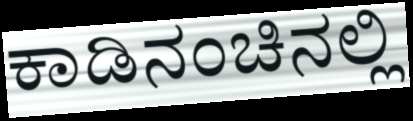
ಕಾಡಿನಂಚಿನಲ್ಲಿ